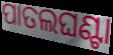
ପାତଲଘଣ୍ଟା